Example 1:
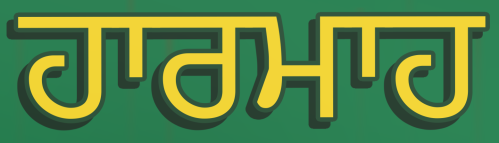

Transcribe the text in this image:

ਹਾਰਮਾਹ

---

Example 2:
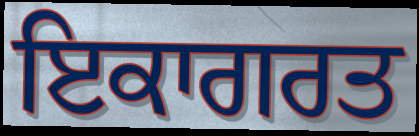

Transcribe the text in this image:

ਇਕਾਗਰਤ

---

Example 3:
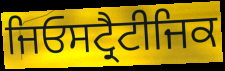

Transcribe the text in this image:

ਜਿਓਸਟ੍ਰੈਟੀਜਿਕ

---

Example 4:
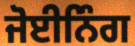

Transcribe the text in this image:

ਜੋਈਨਿੰਗ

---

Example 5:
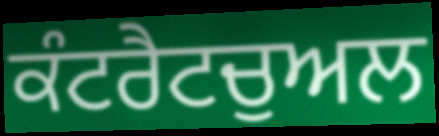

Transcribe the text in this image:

ਕੰਟਰੈਟਚੁਅਲ